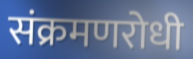
संक्रमणरोधी